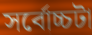
সর্বোচ্চটা